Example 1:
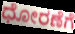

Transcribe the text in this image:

ಧೋರಣೆಗೆ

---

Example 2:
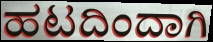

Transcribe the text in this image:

ಹಟದಿಂದಾಗಿ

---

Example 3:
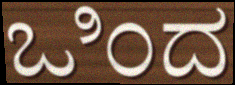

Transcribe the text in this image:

ಒಿಂದ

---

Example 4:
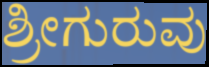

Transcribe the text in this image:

ಶ್ರೀಗುರುವು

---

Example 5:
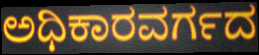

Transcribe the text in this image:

ಅಧಿಕಾರವರ್ಗದ